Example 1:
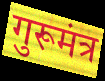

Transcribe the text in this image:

गुरूमंत्र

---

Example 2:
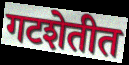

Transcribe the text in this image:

गटशेतीत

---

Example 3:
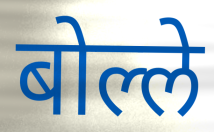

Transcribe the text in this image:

बोल्ले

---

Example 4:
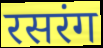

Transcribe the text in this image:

रसरंग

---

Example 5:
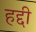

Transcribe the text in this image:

हद्दी